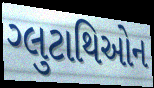
ગ્લુટાથિઓન